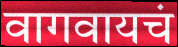
वागवायचं